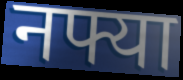
नफ्या